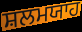
ਸ਼ਲਮਯਾਹ